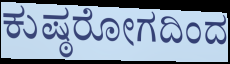
ಕುಷ್ಠರೋಗದಿಂದ